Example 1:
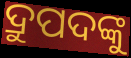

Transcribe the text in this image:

ଦ୍ରୁପଦଙ୍କୁ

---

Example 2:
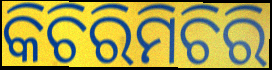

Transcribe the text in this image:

କିଚିରିମିଚିରି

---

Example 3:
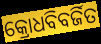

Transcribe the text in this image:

କ୍ରୋଧବିବର୍ଜିତ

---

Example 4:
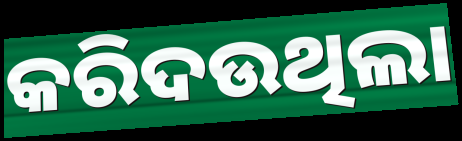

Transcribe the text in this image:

କରିଦଉଥିଲା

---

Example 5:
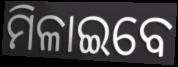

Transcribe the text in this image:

ମିଳାଇବେ